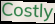
Costly